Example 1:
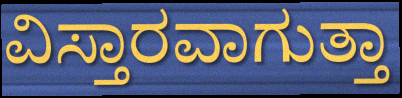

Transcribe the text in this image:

ವಿಸ್ತಾರವಾಗುತ್ತಾ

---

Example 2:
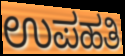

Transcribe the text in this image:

ಉಪಹತಿ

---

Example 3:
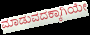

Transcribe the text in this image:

ಮಾಡುವದಕ್ಕಾಗಿಯೇ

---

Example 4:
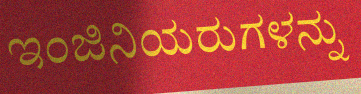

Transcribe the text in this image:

ಇಂಜಿನಿಯರುಗಳನ್ನು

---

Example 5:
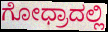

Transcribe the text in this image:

ಗೋಧ್ರಾದಲ್ಲಿ